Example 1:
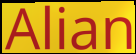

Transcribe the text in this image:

Alian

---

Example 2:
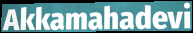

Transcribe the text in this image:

Akkamahadevi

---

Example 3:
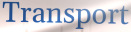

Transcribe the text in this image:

Transport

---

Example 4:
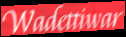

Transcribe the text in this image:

Wadettiwar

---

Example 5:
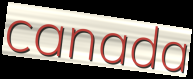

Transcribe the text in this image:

canada